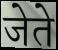
जेते